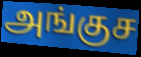
அங்குச